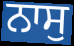
ਨਾਸੁ